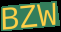
BZW